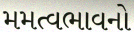
મમત્વભાવનો